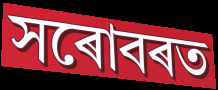
সৰোবৰত